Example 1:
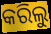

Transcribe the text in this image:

କରିଲୁ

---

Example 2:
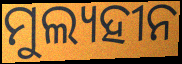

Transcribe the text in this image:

ମୁଲ୍ୟହୀନ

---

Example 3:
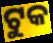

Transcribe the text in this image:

ଟୁକ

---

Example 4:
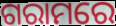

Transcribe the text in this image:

ଗରାମରେ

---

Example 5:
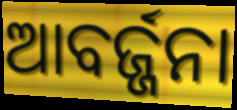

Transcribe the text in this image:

ଆବର୍ଜ୍ଜନା